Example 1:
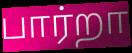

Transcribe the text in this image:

பார்றா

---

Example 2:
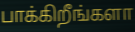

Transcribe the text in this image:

பாக்கிறீங்களா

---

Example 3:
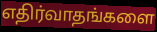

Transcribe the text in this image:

எதிர்வாதங்களை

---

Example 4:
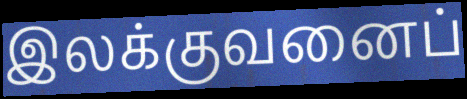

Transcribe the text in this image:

இலக்குவனைப்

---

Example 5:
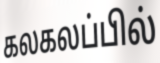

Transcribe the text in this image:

கலகலப்பில்